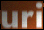
uri